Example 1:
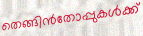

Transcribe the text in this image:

തെങ്ങിൻതോപ്പുകൾക്ക്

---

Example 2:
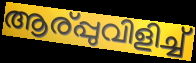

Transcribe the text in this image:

ആര്പ്പുവിളിച്ച്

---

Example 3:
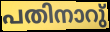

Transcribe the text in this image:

പതിനാറു്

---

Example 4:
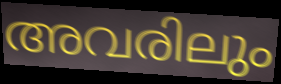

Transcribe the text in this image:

അവരിലും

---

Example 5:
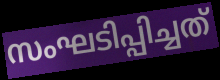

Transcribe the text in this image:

സംഘടിപ്പിച്ചത്